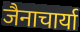
जैनाचार्या